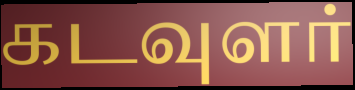
கடவுளர்